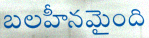
బలహీనమైంది